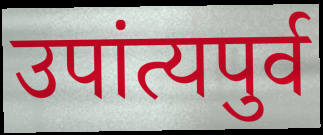
उपांत्यपुर्व